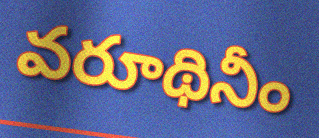
వరూథినీం